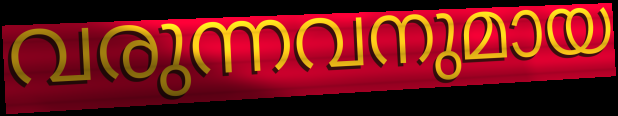
വരുന്നവനുമായ